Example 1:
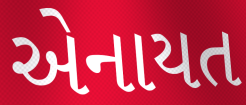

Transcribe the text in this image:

એનાયત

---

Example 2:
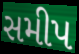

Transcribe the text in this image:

સમીપ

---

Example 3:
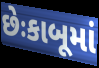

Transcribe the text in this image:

છેઃકાબૂમાં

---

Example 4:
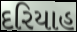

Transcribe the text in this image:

દરિયાહ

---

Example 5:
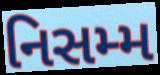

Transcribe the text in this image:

નિસમ્મ